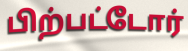
பிற்பட்டோர்